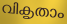
വികൃതാം